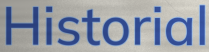
Historial